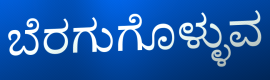
ಬೆರಗುಗೊಳ್ಳುವ